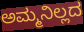
ಅಮ್ಮನಿಲ್ಲದ